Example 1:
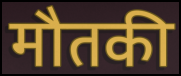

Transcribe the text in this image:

मौतकी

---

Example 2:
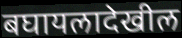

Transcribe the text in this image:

बघायलादेखील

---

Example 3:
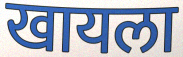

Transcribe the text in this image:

खायला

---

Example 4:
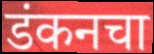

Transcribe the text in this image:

डंकनचा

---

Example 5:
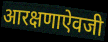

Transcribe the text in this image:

आरक्षणाऐवजी